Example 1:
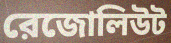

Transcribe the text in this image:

রেজোলিউট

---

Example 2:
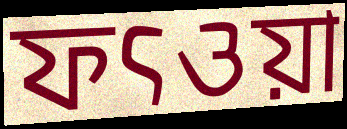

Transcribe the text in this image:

ফৎওয়া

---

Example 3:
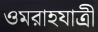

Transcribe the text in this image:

ওমরাহযাত্রী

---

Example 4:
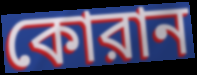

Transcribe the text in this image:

কোরান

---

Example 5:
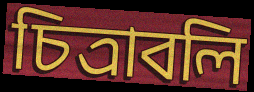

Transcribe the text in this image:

চিত্রাবলি